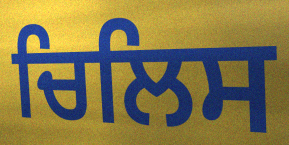
ਚਿਲਿਸ